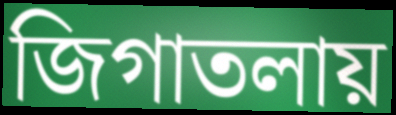
জিগাতলায়